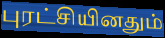
புரட்சியினதும்